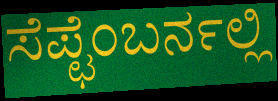
ಸೆಪ್ಟೆಂಬರ್ನಲ್ಲಿ